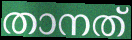
താനത്